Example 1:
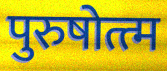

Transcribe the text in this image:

पुरुषोत्त्म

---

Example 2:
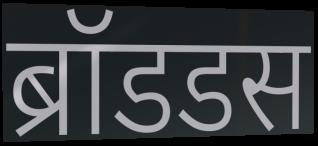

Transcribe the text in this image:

ब्रॉडडस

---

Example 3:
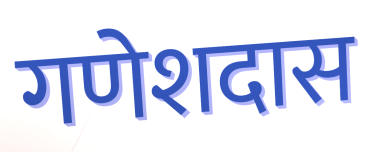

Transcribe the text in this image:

गणेशदास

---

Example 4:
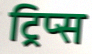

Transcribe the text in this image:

ट्रिप्स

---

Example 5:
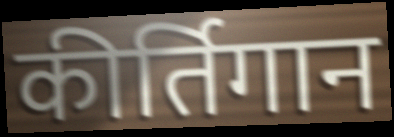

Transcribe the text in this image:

कीर्तिगान